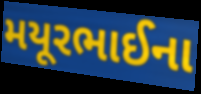
મયૂરભાઈના